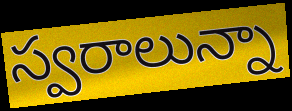
స్వరాలున్నా